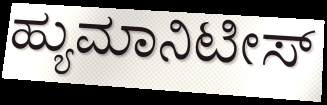
ಹ್ಯುಮಾನಿಟೀಸ್